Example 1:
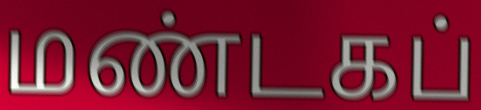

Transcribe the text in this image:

மண்டகப்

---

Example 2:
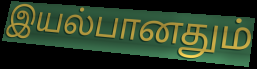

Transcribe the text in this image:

இயல்பானதும்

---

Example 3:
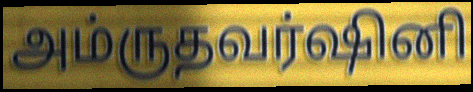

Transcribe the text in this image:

அம்ருதவர்ஷினி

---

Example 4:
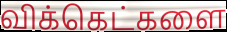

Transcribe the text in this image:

விக்கெட்களை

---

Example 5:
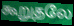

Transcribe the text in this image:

கூறுதலே